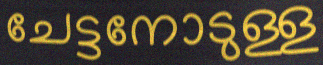
ചേട്ടനോടുള്ള